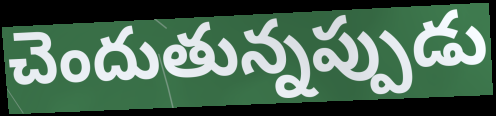
చెందుతున్నప్పుడు